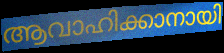
ആവാഹിക്കാനായി